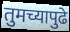
तुमच्यापुढे